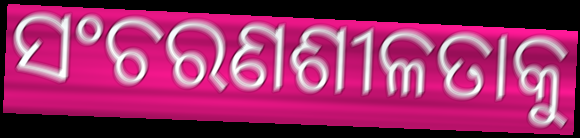
ସଂଚରଣଶୀଳତାକୁ